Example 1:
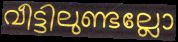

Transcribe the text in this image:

വീട്ടിലുണ്ടല്ലോ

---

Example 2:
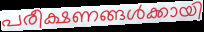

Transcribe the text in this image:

പരീക്ഷണങ്ങൾക്കായി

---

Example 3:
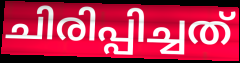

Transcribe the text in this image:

ചിരിപ്പിച്ചത്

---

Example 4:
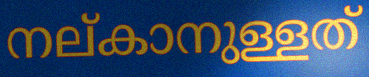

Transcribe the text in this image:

നല്കാനുള്ളത്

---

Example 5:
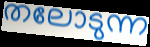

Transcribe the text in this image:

തലോടുന്ന